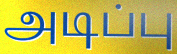
அடிப்பு